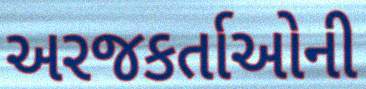
અરજકર્તાઓની